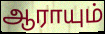
ஆராயும்